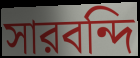
সারবন্দি